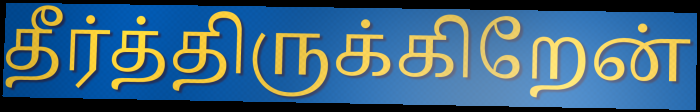
தீர்த்திருக்கிறேன்